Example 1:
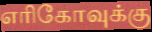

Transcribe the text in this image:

எரிகோவுக்கு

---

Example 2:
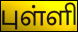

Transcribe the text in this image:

புள்ளி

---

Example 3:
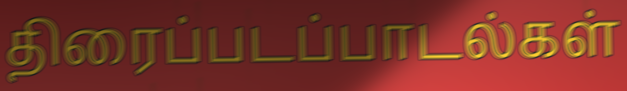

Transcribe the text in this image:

திரைப்படப்பாடல்கள்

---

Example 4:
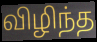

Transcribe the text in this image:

விழிந்த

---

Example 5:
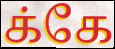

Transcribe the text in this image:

க்கே